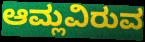
ಆಮ್ಲವಿರುವ